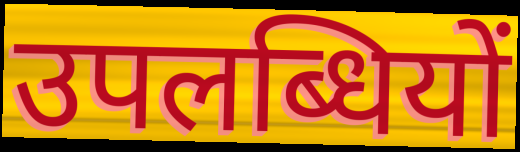
उपलब्धियों